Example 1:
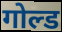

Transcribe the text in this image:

गोल्ड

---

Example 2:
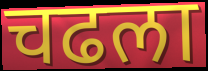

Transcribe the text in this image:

चढला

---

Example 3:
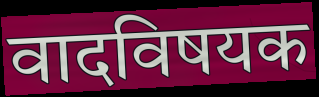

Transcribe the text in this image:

वादविषयक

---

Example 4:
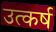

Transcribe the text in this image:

उत्कर्ष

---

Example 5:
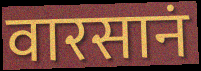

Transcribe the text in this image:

वारसानं